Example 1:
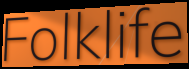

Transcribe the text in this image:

Folklife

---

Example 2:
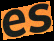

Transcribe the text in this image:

es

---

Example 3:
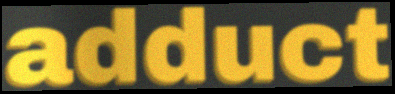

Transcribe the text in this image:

adduct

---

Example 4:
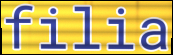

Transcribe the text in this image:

filia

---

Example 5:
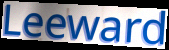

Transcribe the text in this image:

Leeward